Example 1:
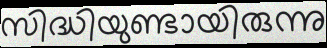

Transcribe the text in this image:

സിദ്ധിയുണ്ടായിരുന്നു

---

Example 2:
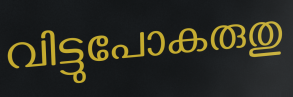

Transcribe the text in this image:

വിട്ടുപോകരുതു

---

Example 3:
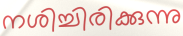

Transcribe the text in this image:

നശിച്ചിരിക്കുന്നു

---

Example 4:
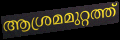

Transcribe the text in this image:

ആശ്രമമുറ്റത്ത്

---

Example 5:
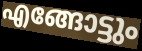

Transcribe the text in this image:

എങ്ങോട്ടും